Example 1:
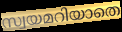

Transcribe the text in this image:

സ്വയമറിയാതെ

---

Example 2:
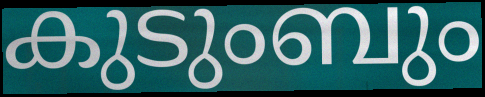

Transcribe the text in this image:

കുടുംബും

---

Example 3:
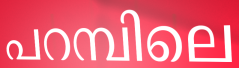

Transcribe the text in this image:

പറമ്പിലെ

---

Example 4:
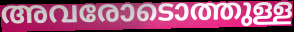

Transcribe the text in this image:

അവരോടൊത്തുള്ള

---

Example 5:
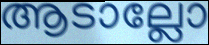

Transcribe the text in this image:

ആടാല്ലോ